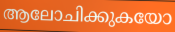
ആലോചിക്കുകയോ